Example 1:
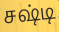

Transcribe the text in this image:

சஷ்டி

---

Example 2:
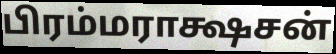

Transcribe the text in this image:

பிரம்மராக்ஷசன்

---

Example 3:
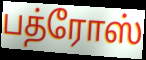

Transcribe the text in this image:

பத்ரோஸ்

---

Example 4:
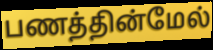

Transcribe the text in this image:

பணத்தின்மேல்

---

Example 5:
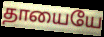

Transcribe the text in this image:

தாயையே